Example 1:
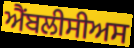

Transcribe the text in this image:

ਐਂਬਲੀਸੀਅਸ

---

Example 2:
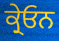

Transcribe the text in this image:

ਕ੍ਰੇਓਨ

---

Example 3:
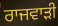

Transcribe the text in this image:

ਰਾਜਵਾੜੀ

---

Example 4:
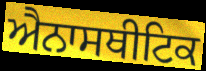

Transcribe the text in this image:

ਐਨਾਸਥੀਟਿਕ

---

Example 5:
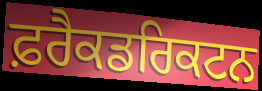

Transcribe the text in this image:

ਫ਼ਰੈਕਡਰਿਕਟਨ